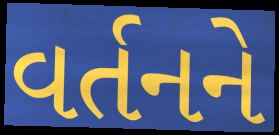
વર્તનને